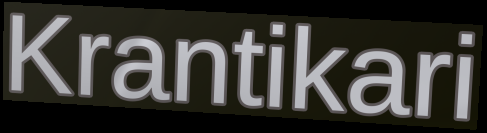
Krantikari